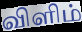
விளிம்